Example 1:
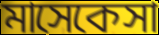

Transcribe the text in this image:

মাসেকেসা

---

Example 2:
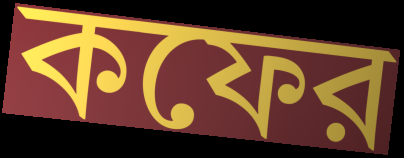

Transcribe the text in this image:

কফের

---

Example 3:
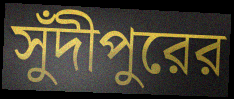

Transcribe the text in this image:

সুঁদীপুরের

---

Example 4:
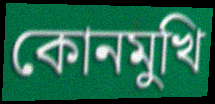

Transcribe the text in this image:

কোনমুখি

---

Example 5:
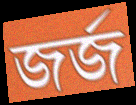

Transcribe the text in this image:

জর্জ